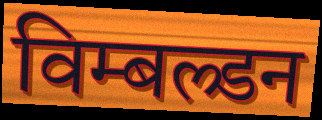
विम्बल्डन